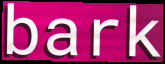
bark